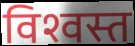
विश्वस्त